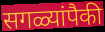
सगळ्यांपैकी